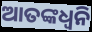
ଆତଙ୍କଧ୍ଵନି